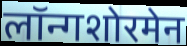
लॉन्गशोरमेन